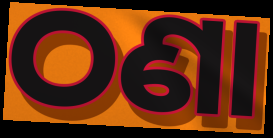
ଠଣା